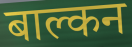
बाल्कन